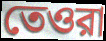
তেওরা